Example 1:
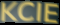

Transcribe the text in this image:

KCIE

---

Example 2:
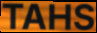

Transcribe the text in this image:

TAHS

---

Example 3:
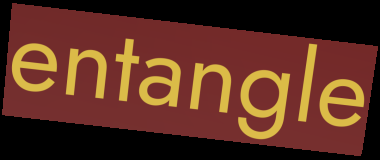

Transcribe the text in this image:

entangle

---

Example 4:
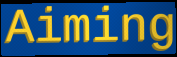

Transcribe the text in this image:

Aiming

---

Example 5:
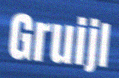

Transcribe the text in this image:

Gruijl